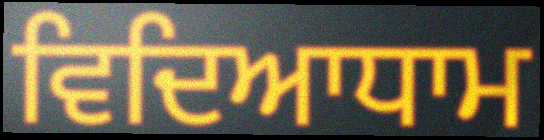
ਵਿਦਿਆਧਾਮ